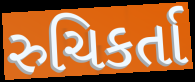
રુચિકર્તા